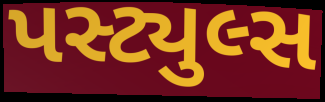
પસ્ટ્યુલ્સ